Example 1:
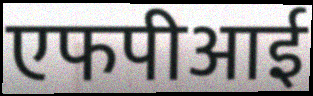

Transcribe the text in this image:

एफपीआई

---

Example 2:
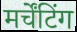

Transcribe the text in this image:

मर्चेंटिंग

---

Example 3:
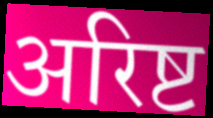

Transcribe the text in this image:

अरिष्ट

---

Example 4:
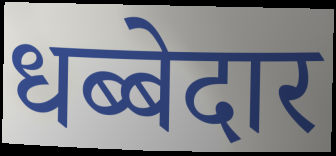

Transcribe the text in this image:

धब्बेदार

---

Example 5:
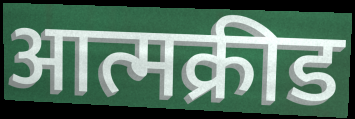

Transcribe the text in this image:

आत्मक्रीड